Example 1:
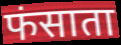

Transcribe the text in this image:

फंसाता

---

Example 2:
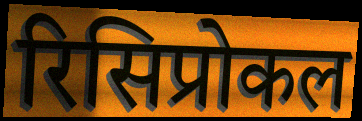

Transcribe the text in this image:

रिसिप्रोकल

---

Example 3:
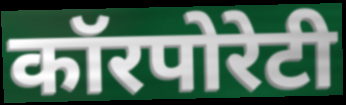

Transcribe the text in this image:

कॉरपोरेटी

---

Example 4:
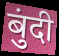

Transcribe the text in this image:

बुंदी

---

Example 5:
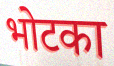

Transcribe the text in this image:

भोटका